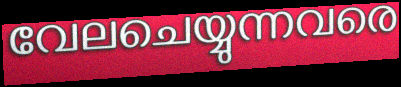
വേലചെയ്യുന്നവരെ